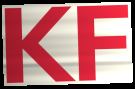
KF